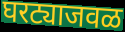
घरट्याजवळ